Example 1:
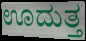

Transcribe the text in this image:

ಊದುತ್ತ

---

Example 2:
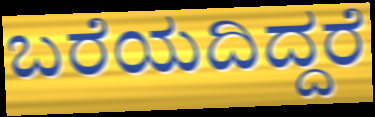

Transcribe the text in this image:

ಬರೆಯದಿದ್ದರೆ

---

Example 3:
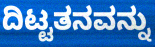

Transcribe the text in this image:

ದಿಟ್ಟತನವನ್ನು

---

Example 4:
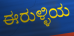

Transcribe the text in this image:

ಈರುಳ್ಳಿಯ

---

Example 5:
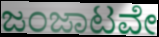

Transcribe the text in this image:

ಜಂಜಾಟವೇ